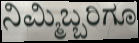
ನಿಮ್ಮಿಬ್ಬರಿಗೂ